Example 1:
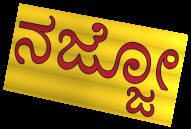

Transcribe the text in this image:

ನಜ್ಜೋ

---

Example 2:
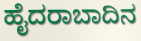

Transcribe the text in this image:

ಹೈದರಾಬಾದಿನ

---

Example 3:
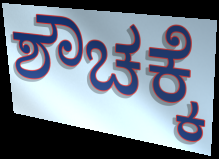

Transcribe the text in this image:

ಶೌಚಕ್ಕೆ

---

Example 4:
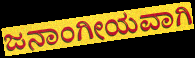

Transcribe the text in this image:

ಜನಾಂಗೀಯವಾಗಿ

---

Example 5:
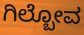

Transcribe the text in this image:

ಗಿಲ್ಬೋವ